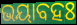
ଭୟାବହଃ